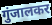
गुंजालकर